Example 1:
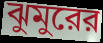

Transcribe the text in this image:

ঝুমুরের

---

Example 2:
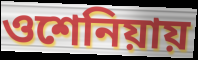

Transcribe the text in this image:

ওশেনিয়ায়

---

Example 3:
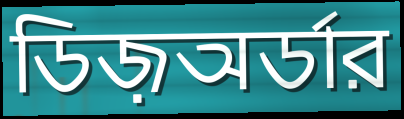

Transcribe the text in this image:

ডিজ়অর্ডার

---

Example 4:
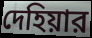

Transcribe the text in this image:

দেহিয়ার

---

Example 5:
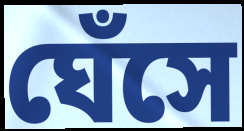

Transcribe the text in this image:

ঘেঁসে